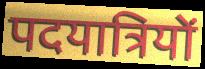
पदयात्रियों